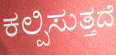
ಕಲ್ಪಿಸುತ್ತದೆ